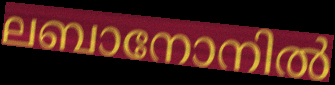
ലബാനോനിൽ